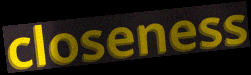
closeness